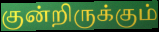
குன்றிருக்கும்